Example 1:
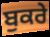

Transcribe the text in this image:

ਬੁਕਰੇ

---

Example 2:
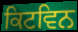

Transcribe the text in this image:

ਕਿਟਵਿਨ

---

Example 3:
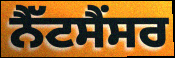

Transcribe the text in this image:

ਨੈੱਟਸੈਂਸਰ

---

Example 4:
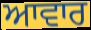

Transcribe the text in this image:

ਆਵਾਰ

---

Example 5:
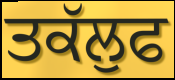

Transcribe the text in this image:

ਤਕੱਲੁਫ